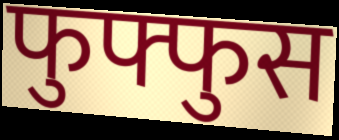
फुफ्फुस